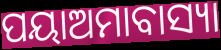
ପୟାଅମାବାସ୍ୟା